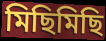
মিছিমিছি